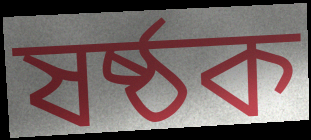
ষষ্ঠক